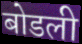
बोडली